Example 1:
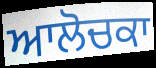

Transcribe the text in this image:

ਆਲੋਚਕਾ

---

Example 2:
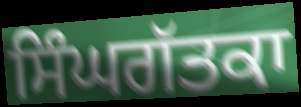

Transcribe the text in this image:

ਸਿੰਘਗੱਤਕਾ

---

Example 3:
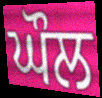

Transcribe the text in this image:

ਘੌਲ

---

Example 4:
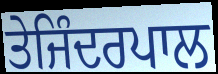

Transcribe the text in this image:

ਤੇਜਿੰਦਰਪਾਲ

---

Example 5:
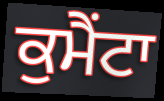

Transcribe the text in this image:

ਕੁਮੈਂਟਾ